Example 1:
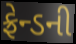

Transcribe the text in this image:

ફ્રેન્ડની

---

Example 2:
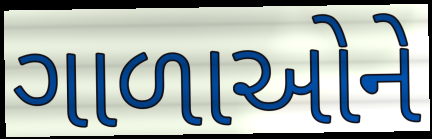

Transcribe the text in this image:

ગાળાઓને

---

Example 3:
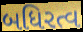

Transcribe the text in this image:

બધિરત્વ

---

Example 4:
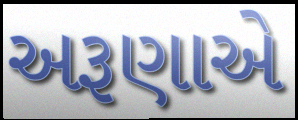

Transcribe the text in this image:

અરૂણાએ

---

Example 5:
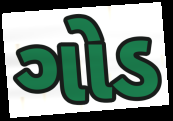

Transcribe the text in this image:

ગોડ